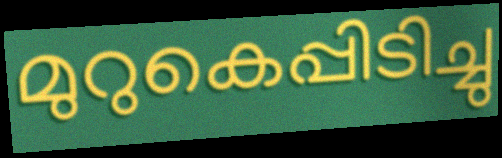
മുറുകെപ്പിടിച്ചു